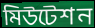
মিউটেশন